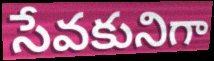
సేవకునిగా